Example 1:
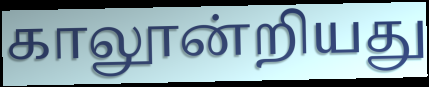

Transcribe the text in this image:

காலூன்றியது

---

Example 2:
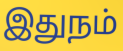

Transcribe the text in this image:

இதுநம்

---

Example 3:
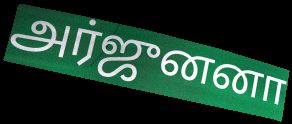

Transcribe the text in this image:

அர்ஜுனனா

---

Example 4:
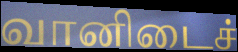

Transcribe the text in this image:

வானிடைச்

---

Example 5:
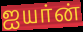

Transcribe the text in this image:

ஐயர்ன்